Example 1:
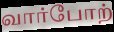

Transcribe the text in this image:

வார்போற்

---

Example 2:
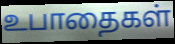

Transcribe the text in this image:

உபாதைகள்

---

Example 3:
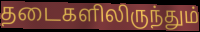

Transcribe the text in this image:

தடைகளிலிருந்தும்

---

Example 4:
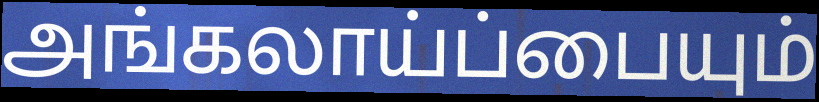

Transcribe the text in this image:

அங்கலாய்ப்பையும்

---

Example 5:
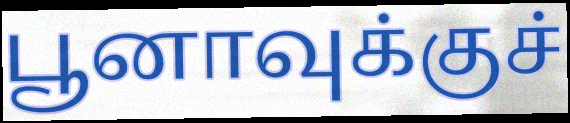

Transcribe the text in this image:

பூனாவுக்குச்